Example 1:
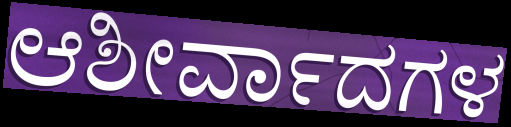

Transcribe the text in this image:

ಆಶೀರ್ವಾದಗಳ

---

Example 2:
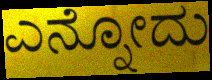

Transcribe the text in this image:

ಎನ್ನೋದು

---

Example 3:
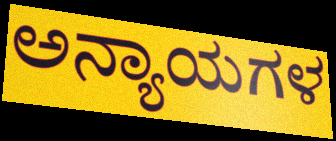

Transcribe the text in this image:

ಅನ್ಯಾಯಗಳ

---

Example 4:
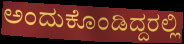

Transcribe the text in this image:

ಅಂದುಕೊಂಡಿದ್ದರಲ್ಲಿ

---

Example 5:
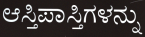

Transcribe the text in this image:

ಆಸ್ತಿಪಾಸ್ತಿಗಳನ್ನು